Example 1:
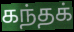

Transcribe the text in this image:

கந்தக்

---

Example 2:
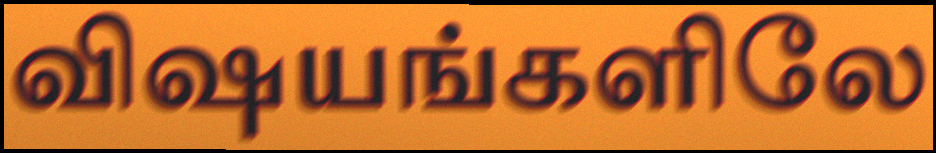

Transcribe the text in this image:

விஷயங்களிலே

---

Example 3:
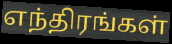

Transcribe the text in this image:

எந்திரங்கள்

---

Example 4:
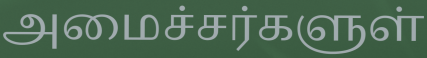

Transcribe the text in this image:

அமைச்சர்களுள்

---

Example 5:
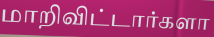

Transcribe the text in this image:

மாறிவிட்டார்களா